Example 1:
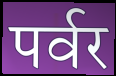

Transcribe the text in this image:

पर्वर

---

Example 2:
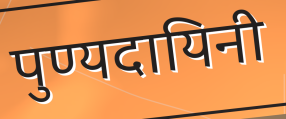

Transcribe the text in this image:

पुण्यदायिनी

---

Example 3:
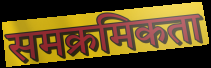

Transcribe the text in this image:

समक्रमिकता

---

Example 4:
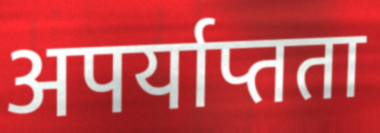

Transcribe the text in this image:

अपर्याप्तता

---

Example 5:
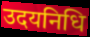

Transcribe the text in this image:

उदयनिधि